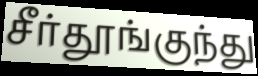
சீர்தூங்குந்து